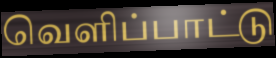
வெளிப்பாட்டு